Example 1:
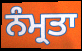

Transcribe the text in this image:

ਨੰਮ੍ਰਤਾ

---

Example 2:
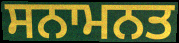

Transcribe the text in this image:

ਸਨਾਮਨਤ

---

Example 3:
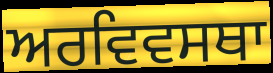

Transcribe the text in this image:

ਅਰਵਿਵਸਥਾ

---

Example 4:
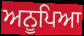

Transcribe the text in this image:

ਅਨੂਪਿਆ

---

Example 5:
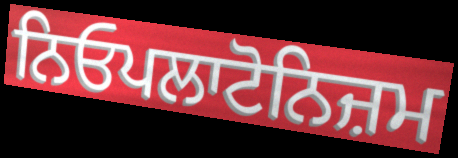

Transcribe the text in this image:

ਨਿਓਪਲਾਟੋਨਿਜ਼ਮ